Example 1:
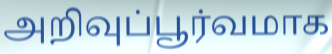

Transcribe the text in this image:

அறிவுப்பூர்வமாக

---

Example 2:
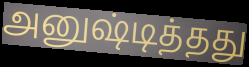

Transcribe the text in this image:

அனுஷ்டித்தது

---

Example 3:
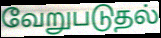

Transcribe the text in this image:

வேறுபடுதல்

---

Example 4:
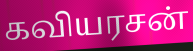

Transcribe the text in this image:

கவியரசன்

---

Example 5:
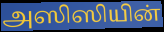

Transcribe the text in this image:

அஸிஸியின்